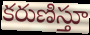
కరుణిస్తూ